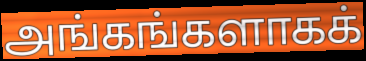
அங்கங்களாகக்